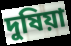
দুষিয়া